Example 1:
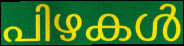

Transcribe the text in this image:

പിഴകൾ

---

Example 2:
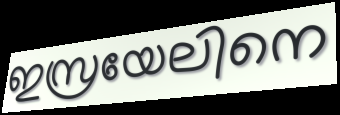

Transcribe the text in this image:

ഇസ്രയേലിനെ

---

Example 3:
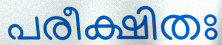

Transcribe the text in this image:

പരീക്ഷിതഃ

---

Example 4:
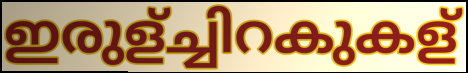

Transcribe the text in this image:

ഇരുള്ച്ചിറകുകള്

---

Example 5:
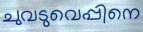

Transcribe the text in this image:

ചുവടുവെപ്പിനെ